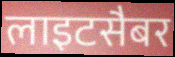
लाइटसैबर